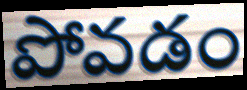
పోవడం